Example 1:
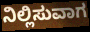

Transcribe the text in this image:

ನಿಲ್ಲಿಸುವಾಗ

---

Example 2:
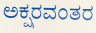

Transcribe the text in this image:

ಅಕ್ಷರವಂತರ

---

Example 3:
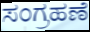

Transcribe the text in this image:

ಸಂಗ್ರಹಣೆ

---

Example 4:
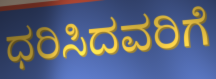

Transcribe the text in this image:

ಧರಿಸಿದವರಿಗೆ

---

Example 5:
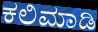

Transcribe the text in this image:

ಕಲಿಮಾಡಿ